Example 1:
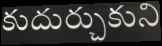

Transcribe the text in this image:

కుదుర్చుకుని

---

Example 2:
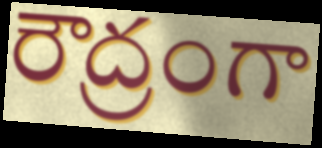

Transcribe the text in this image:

రౌద్రంగా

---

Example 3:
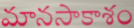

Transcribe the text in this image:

మానసాకాశం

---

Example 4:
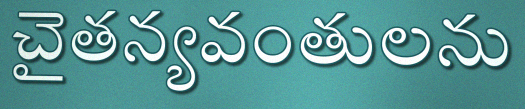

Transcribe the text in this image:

చైతన్యవంతులను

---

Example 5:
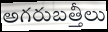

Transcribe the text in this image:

అగరుబత్తీలు